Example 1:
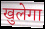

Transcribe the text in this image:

खुलेगा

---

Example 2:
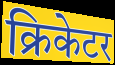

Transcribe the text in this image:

क्रिकेटर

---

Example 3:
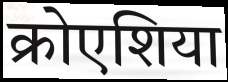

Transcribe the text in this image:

क्रोएशिया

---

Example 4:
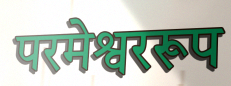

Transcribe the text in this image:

परमेश्वररूप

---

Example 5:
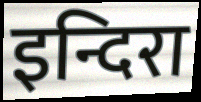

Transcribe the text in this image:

इन्दिरा